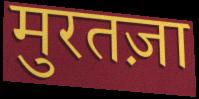
मुरतज़ा